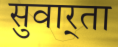
सुवार्ता